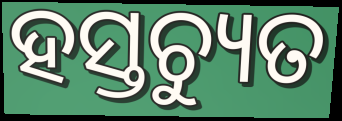
ହସ୍ତଚ୍ୟୁତ